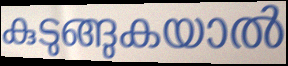
കുടുങ്ങുകയാൽ